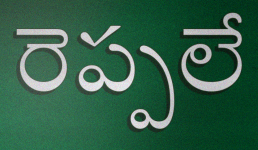
రెప్పలే